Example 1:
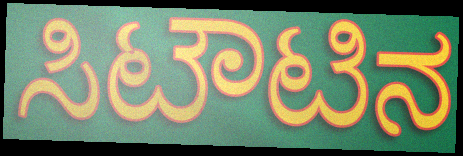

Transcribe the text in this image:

ಸಿಟೌಟಿನ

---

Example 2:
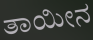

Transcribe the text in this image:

ತಾಯೀನ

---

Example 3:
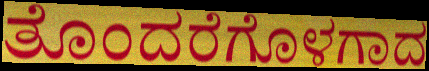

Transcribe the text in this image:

ತೊಂದರೆಗೊಳಗಾದ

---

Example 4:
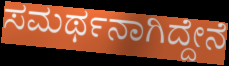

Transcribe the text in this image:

ಸಮರ್ಥನಾಗಿದ್ದೇನೆ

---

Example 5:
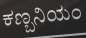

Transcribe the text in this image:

ಕಣ್ಬನಿಯಂ